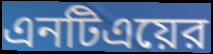
এনটিএয়ের